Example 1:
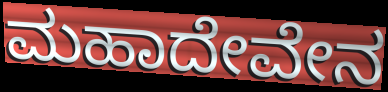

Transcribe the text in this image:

ಮಹಾದೇವೇನ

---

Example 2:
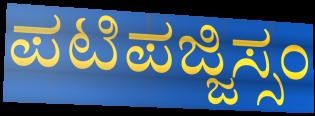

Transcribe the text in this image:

ಪಟಿಪಜ್ಜಿಸ್ಸಂ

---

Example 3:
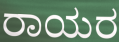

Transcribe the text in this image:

ರಾಯರ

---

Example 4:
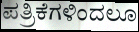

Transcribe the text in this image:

ಪತ್ರಿಕೆಗಳಿಂದಲೂ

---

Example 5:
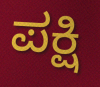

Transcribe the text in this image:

ಪಕ್ಷಿ